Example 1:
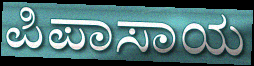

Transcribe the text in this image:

ಪಿಪಾಸಾಯ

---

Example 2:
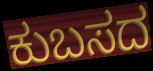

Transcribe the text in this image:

ಕುಬಸದ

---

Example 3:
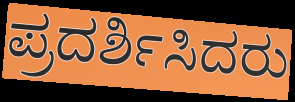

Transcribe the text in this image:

ಪ್ರದರ್ಶಿಸಿದರು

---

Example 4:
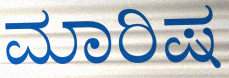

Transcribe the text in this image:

ಮಾರಿಷ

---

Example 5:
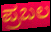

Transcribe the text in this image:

ಪ್ರಬಲ